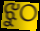
ଝୁଠ